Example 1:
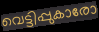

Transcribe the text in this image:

വെട്ടിപ്പുകാരോ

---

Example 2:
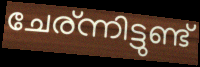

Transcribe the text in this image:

ചേര്ന്നിട്ടുണ്ട്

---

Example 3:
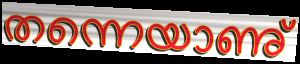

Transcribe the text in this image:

തന്നെയാണു്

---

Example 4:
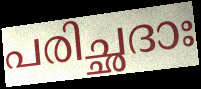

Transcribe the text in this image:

പരിച്ഛദാഃ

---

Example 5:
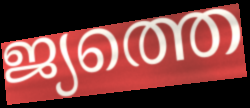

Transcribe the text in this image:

ജ്യത്തെ